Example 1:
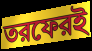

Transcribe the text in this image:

তরফেরই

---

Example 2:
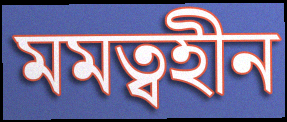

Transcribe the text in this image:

মমত্বহীন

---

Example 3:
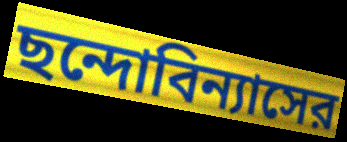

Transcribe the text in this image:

ছন্দোবিন্যাসের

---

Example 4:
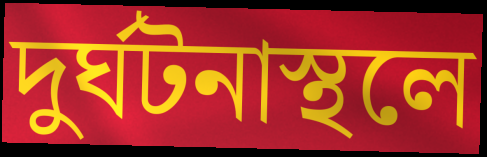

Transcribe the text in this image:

দুর্ঘটনাস্থলে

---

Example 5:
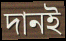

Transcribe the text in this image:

দানই